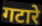
गटारे